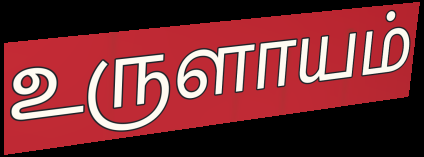
உருளாயம்